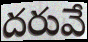
దరువే